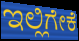
ಇಲ್ಲಿಗೇಕೆ